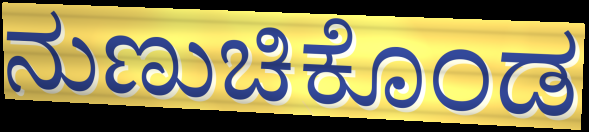
ನುಣುಚಿಕೊಂಡ